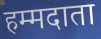
हम्मदाता